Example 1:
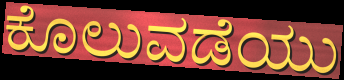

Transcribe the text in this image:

ಕೊಲುವಡೆಯು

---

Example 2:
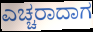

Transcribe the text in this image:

ಎಚ್ಚರಾದಾಗ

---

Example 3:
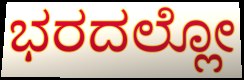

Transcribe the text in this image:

ಭರದಲ್ಲೋ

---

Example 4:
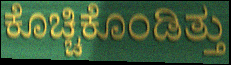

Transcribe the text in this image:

ಕೊಚ್ಚಿಕೊಂಡಿತ್ತು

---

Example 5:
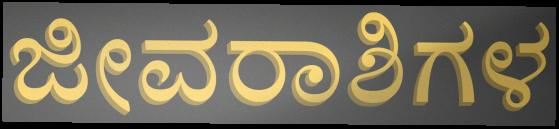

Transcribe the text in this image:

ಜೀವರಾಶಿಗಳ